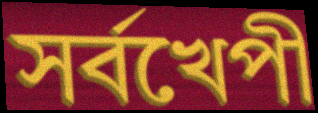
সর্বখেপী